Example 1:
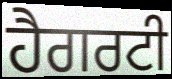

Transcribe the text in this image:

ਹੈਗਰਟੀ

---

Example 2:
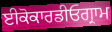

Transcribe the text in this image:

ਈਕੋਕਾਰਡੀਓਗ੍ਰਾਮ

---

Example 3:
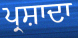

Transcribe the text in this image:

ਪ੍ਰਸ਼ਾਦਾ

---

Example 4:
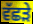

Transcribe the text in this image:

ਵੱਛੜੇ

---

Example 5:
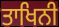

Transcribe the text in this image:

ਤਾਖਿਨੀ